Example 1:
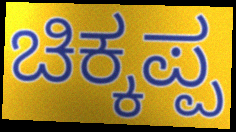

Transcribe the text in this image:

ಚಿಕ್ಕಪ್ಪ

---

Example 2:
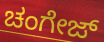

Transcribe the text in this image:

ಚಂಗೇಜ್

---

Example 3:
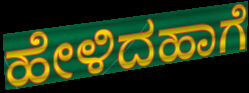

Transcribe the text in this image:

ಹೇಳಿದಹಾಗೆ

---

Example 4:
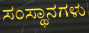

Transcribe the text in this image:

ಸಂಸ್ಥಾನಗಳು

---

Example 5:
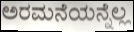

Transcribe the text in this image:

ಅರಮನೆಯನ್ನೆಲ್ಲ